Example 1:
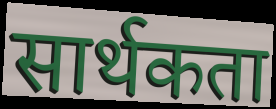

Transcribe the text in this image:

सार्थकता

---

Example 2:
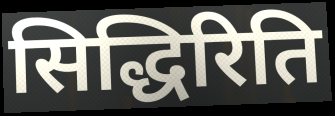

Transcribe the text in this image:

सिद्धिरिति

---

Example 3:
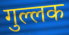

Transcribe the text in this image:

गुल्लक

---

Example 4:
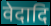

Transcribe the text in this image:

वेदादि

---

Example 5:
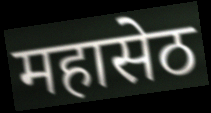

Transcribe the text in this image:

महासेठ